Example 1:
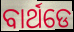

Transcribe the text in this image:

ବାର୍ଥଡେ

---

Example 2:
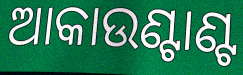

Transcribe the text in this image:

ଆକାଉଣ୍ଟାଣ୍ଟ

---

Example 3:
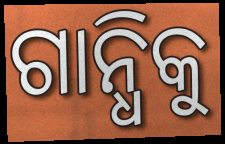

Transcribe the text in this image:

ଗାନ୍ଧିକୁ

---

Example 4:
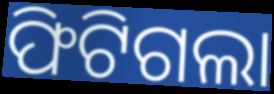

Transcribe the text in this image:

ଫିଟିଗଲା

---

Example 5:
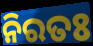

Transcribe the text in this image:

ନିରତଃ